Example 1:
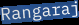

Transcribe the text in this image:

Rangaraj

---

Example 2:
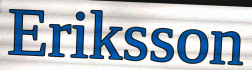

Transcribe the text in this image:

Eriksson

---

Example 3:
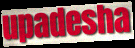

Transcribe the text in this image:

upadesha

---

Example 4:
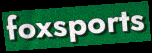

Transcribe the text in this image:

foxsports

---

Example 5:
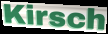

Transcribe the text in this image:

Kirsch